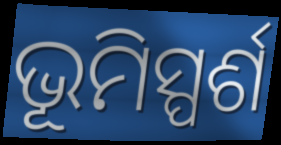
ଭୂମିସ୍ପର୍ଶ